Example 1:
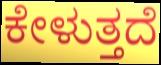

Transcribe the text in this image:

ಕೇಳುತ್ತದೆ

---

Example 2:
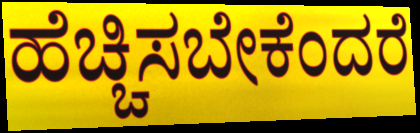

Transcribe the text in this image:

ಹೆಚ್ಚಿಸಬೇಕೆಂದರೆ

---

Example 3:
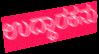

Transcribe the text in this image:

ಉದ್ಧಾರಕನು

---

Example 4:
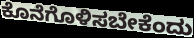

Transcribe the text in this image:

ಕೊನೆಗೊಳಿಸಬೇಕೆಂದು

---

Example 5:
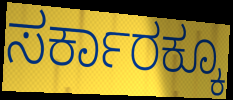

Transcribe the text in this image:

ಸರ್ಕಾರಕ್ಕೂ